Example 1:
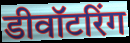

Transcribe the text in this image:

डीवॉटरिंग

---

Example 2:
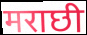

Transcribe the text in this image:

मराछी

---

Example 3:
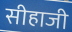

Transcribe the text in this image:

सीहाजी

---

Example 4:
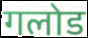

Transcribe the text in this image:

गलोड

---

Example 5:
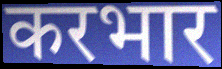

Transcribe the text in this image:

करभार